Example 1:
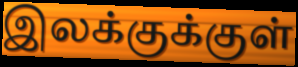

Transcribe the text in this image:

இலக்குக்குள்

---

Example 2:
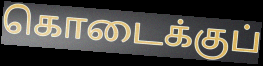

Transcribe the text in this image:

கொடைக்குப்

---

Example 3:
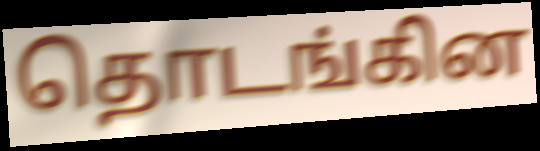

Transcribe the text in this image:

தொடங்கின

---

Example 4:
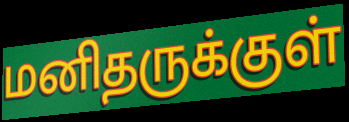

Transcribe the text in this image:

மனிதருக்குள்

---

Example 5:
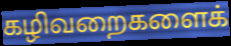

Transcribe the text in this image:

கழிவறைகளைக்